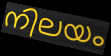
നിലയം